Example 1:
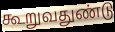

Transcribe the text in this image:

கூறுவதுண்டு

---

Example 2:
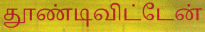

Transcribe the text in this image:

தூண்டிவிட்டேன்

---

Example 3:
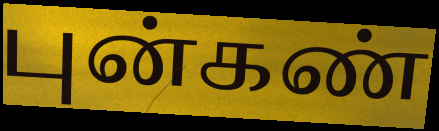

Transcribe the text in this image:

புன்கண்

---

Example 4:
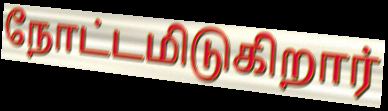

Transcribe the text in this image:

நோட்டமிடுகிறார்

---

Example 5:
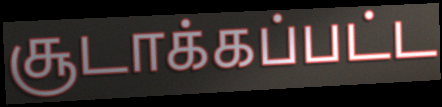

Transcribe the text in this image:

சூடாக்கப்பட்ட